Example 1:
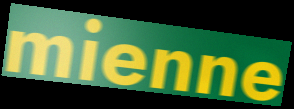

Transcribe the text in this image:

mienne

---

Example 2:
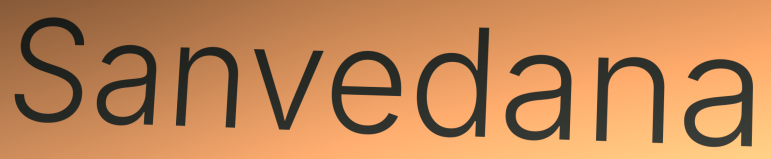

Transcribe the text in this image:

Sanvedana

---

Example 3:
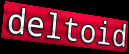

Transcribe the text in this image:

deltoid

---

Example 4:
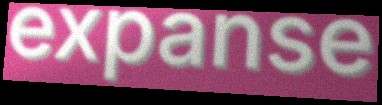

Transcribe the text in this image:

expanse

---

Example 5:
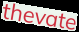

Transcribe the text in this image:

thevate